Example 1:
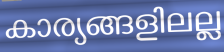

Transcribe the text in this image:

കാര്യങ്ങളിലല്ല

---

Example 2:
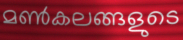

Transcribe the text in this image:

മൺകലങ്ങളുടെ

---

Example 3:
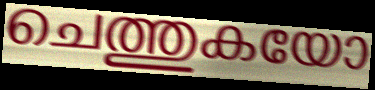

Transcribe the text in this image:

ചെത്തുകയോ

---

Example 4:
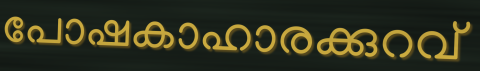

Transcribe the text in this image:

പോഷകാഹാരക്കുറവ്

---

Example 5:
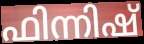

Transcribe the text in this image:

ഫിന്നിഷ്